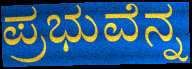
ಪ್ರಭುವೆನ್ನ